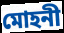
মোহনী